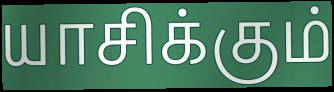
யாசிக்கும்